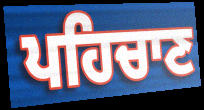
ਪਹਿਚਾਣ